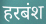
हरबंश